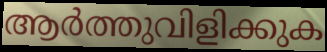
ആർത്തുവിളിക്കുക